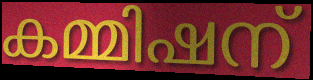
കമ്മിഷന്